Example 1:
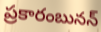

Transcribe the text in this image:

ప్రకారంబునన్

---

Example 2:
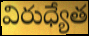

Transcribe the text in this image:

విరుధ్యేత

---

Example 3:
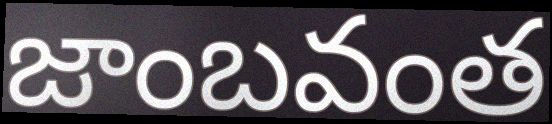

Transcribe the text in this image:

జాంబవంత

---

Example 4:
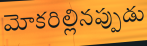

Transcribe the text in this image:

మోకరిల్లినప్పుడు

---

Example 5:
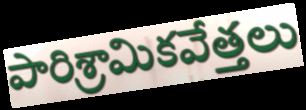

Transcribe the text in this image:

పారిశ్రామికవేత్తలు